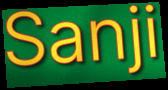
Sanji